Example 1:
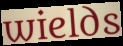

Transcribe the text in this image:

wields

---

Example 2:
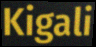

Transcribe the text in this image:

Kigali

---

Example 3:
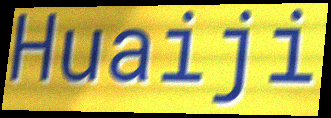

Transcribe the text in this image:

Huaiji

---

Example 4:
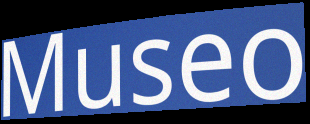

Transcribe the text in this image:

Museo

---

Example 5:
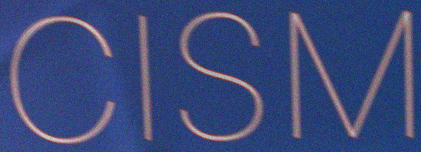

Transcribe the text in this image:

CISM